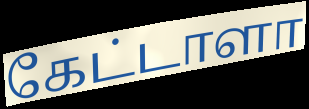
கேட்டாளா